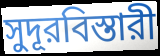
সুদূরবিস্তারী